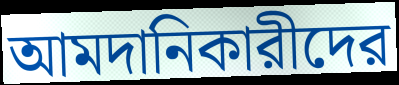
আমদানিকারীদের